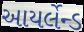
આયર્લેન્ડ